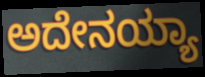
ಅದೇನಯ್ಯಾ